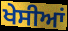
ਖੇਸੀਆਂ